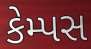
કેમ્પસ